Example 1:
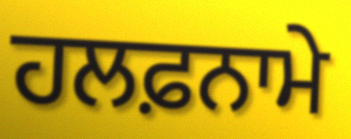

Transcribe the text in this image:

ਹਲਫ਼ਨਾਮੇ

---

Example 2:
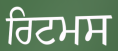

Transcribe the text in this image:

ਰਿਟਮਸ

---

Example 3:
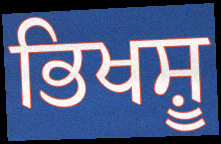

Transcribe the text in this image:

ਭਿਖਸ਼ੂ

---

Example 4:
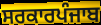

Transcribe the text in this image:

ਸਰਕਾਰਪੰਜਾਬ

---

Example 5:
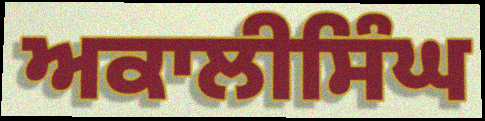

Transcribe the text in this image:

ਅਕਾਲੀਸਿੰਘ